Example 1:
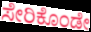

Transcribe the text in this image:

ಸೇರಿಕೊಂಡೇ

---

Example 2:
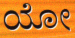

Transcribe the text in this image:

ಯೋ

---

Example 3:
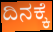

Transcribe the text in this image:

ದಿನಕ್ಕೆ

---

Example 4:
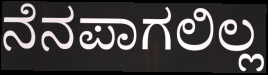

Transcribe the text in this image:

ನೆನಪಾಗಲಿಲ್ಲ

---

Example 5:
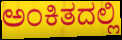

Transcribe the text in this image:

ಅಂಕಿತದಲ್ಲಿ